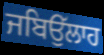
ਜਬਿਉੱਲਾਹ